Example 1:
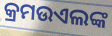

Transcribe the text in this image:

କ୍ରମଉଏଲଙ୍କ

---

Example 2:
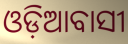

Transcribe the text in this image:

ଓଡ଼ିଆବାସୀ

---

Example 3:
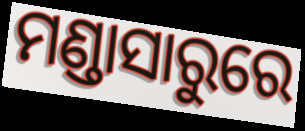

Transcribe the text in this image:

ମଣ୍ଡାସାରୁରେ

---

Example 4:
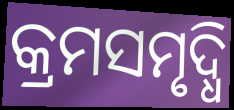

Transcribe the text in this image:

କ୍ରମସମୃଦ୍ଧି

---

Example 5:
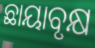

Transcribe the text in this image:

ଛାୟାବୃକ୍ଷ